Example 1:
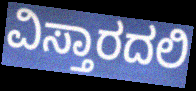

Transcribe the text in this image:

ವಿಸ್ತಾರದಲಿ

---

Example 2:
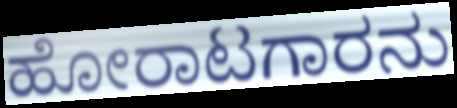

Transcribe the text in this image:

ಹೋರಾಟಗಾರನು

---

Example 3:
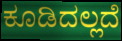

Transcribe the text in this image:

ಕೂಡಿದಲ್ಲದೆ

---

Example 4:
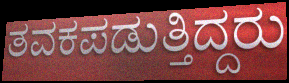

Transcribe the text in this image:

ತವಕಪಡುತ್ತಿದ್ದರು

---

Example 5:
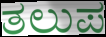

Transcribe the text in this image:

ತಲುಪ